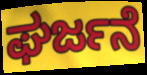
ಘರ್ಜನೆ